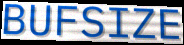
BUFSIZE